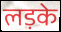
लड़के